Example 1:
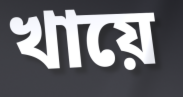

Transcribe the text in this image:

খায়ে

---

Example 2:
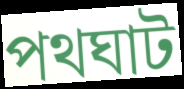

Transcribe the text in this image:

পথঘাট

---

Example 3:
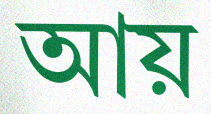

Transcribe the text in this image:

আয়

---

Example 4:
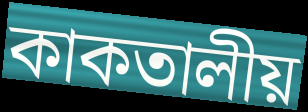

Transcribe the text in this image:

কাকতালীয়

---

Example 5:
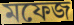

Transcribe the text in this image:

মফেজ